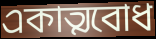
একাত্মবোধ